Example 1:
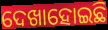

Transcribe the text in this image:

ଦେଖାହୋଇଛି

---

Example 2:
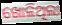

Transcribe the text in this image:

ଖୋଳିଥିଲା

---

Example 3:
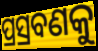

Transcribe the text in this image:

ପ୍ରସ୍ରବଣକୁ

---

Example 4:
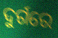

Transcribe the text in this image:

ଦୁର୍ଗରେ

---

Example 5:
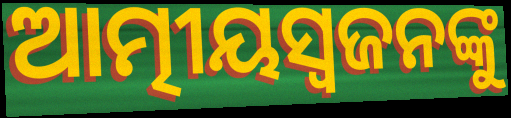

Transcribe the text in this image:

ଆତ୍ମୀୟସ୍ୱଜନଙ୍କୁ